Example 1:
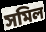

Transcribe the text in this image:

সমিল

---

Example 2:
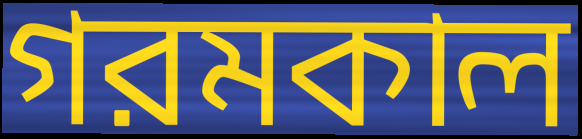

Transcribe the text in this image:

গরমকাল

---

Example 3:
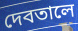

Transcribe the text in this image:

দেবতালে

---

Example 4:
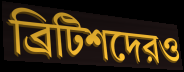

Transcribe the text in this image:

ব্রিটিশদেরও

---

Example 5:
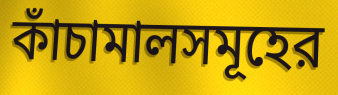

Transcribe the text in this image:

কাঁচামালসমূহের